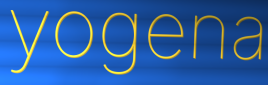
yogena